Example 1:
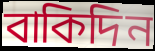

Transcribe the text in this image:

বাকিদিন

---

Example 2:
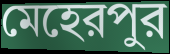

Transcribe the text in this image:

মেহেরপুর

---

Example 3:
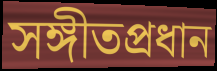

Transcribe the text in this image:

সঙ্গীতপ্রধান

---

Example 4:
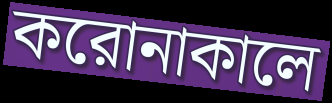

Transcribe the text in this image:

করোনাকালে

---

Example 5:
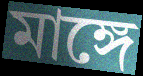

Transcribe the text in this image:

মাঙ্গে